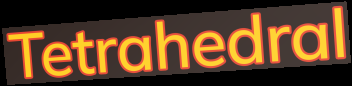
Tetrahedral